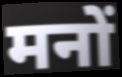
मनों